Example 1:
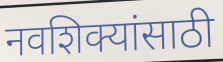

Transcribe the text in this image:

नवशिक्यांसाठी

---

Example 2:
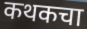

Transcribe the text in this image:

कथकचा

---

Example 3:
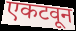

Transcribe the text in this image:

एकटवून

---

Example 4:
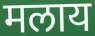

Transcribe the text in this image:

मलाय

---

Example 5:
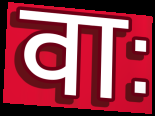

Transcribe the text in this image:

वाः